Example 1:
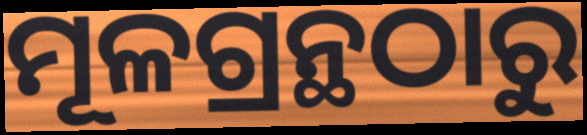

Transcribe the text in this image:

ମୂଳଗ୍ରନ୍ଥଠାରୁ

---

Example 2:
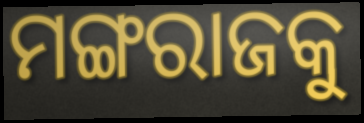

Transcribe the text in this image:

ମଙ୍ଗରାଜକୁ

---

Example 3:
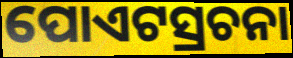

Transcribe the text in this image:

ପୋଏଟସ୍ରଚନା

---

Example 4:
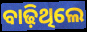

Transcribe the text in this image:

ବାଢ଼ିଥିଲେ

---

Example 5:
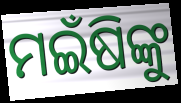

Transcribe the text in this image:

ମଇଁଷିଙ୍କୁ